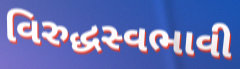
વિરુદ્ધસ્વભાવી